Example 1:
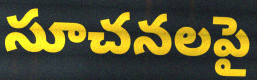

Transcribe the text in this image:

సూచనలపై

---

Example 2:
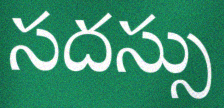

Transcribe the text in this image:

సదస్సు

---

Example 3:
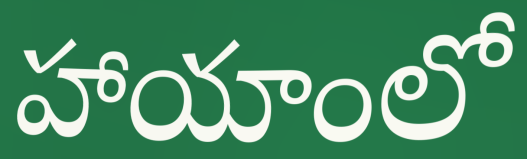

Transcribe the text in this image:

హాయాంలో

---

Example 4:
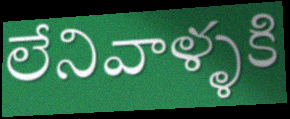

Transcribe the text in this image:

లేనివాళ్ళకి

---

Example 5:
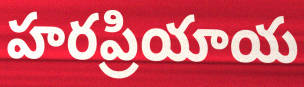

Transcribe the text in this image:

హరప్రియాయ